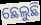
ଛେଲୁଛି